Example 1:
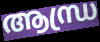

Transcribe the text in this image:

ആന്ധ്ര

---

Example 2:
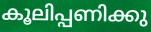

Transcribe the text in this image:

കൂലിപ്പണിക്കു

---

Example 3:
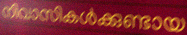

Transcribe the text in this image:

നിവാസികൾക്കുണ്ടായ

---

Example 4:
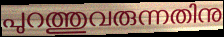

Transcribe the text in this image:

പുറത്തുവരുന്നതിനു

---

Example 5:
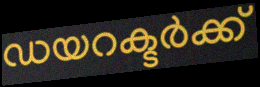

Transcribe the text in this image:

ഡയറക്ടർക്ക്